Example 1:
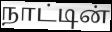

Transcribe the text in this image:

நாட்டின்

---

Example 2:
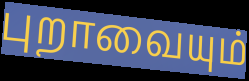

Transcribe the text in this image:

புறாவையும்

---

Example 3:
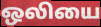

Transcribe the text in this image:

ஒலியை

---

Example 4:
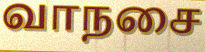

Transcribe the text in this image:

வாநசை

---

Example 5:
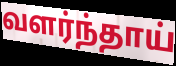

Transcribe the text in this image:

வளர்ந்தாய்